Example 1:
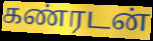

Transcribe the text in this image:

கண்ரடன்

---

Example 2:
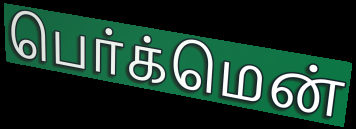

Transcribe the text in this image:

பெர்க்மென்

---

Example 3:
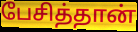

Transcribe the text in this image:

பேசித்தான்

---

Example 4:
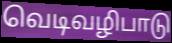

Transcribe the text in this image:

வெடிவழிபாடு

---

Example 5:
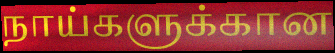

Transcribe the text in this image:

நாய்களுக்கான